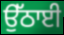
ਉੱਠਾਈ